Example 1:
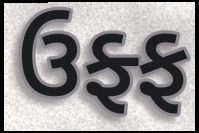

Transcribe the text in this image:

ઉફ્ફ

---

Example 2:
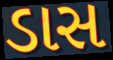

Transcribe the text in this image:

ડાસ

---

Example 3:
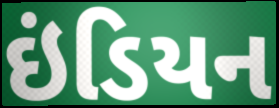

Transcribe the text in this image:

ઇંડિયન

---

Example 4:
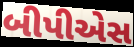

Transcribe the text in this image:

બીપીએસ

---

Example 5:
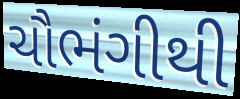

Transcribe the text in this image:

ચૌભંગીથી